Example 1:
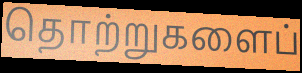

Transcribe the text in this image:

தொற்றுகளைப்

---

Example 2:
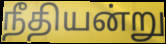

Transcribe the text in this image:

நீதியன்று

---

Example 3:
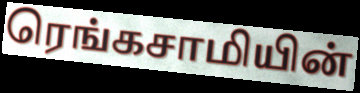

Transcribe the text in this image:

ரெங்கசாமியின்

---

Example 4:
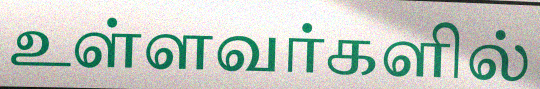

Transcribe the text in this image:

உள்ளவர்களில்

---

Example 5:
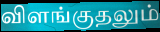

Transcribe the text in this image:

விளங்குதலும்